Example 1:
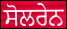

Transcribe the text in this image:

ਸੋਲਰੇਨ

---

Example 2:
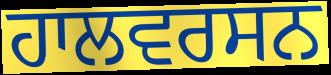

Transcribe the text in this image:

ਹਾਲਵਰਸਨ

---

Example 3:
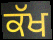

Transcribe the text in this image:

ਕੱਖ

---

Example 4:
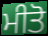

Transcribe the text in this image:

ਮੀਤੋ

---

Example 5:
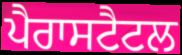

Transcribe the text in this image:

ਪੈਰਾਸਟੈਟਲ